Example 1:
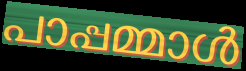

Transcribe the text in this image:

പാപ്പമ്മാൾ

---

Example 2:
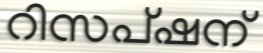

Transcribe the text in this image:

റിസപ്ഷന്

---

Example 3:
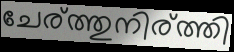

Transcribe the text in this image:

ചേര്ത്തുനിര്ത്തി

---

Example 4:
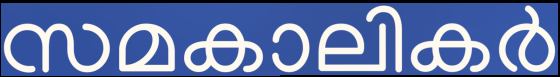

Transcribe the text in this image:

സമകാലികർ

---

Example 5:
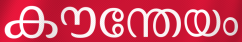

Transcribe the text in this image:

കൗന്തേയം